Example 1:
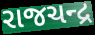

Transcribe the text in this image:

રાજચન્દ્ર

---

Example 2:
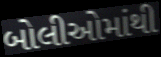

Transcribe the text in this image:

બોલીઓમાંથી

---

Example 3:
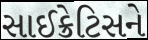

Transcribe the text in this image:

સાઈક્રેટિસને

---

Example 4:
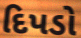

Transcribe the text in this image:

દિપડો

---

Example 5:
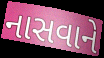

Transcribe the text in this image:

નાસવાને